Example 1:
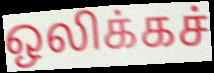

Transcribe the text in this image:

ஒலிக்கச்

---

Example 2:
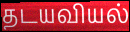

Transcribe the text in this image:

தடயவியல்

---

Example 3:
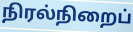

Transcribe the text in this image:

நிரல்நிறைப்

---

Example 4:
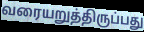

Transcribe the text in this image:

வரையறுத்திருப்பது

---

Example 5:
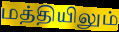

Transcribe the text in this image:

மத்தியிலும்